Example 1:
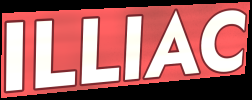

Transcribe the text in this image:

ILLIAC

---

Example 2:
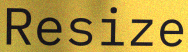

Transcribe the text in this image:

Resize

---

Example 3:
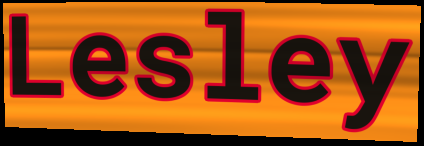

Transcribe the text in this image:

Lesley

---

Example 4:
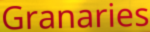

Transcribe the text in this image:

Granaries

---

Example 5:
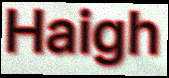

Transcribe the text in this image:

Haigh